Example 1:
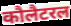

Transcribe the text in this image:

कौलैटरल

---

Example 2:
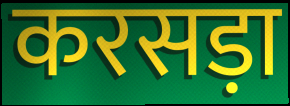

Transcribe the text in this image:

करसड़ा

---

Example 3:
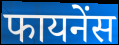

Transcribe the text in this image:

फायनेंस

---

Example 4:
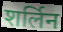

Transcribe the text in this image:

शर्लिन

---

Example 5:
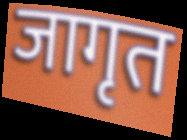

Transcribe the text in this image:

जागृत